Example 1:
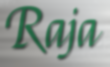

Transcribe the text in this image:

Raja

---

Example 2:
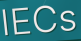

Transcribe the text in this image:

IECs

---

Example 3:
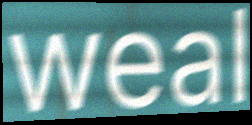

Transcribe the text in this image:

weal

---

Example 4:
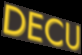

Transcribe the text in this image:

DECU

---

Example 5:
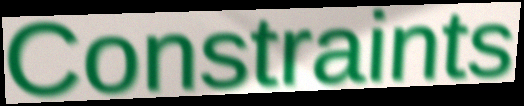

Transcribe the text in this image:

Constraints